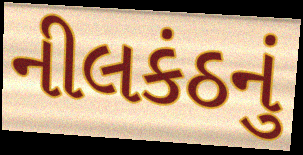
નીલકંઠનું